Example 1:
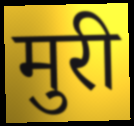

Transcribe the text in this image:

मुरी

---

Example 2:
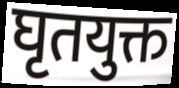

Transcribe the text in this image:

घृतयुक्त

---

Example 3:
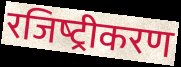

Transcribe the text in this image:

रजिष्ट्रीकरण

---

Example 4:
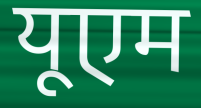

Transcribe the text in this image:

यूएम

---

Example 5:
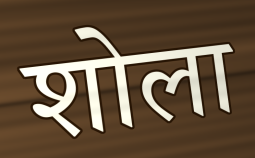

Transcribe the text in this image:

शोला